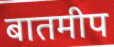
बातमीप